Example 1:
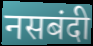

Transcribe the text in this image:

नसबंदी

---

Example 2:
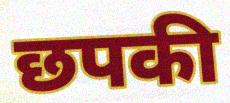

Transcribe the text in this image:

छपकी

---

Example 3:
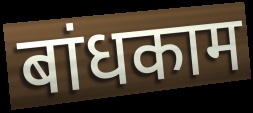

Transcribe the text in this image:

बांधकाम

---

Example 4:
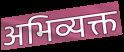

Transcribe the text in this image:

अभिव्यक्त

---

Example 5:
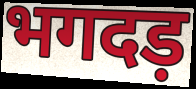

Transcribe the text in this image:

भगदड़